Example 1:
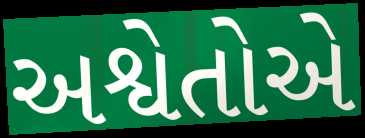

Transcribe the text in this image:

અશ્વેતોએ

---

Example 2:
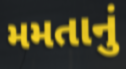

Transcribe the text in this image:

મમતાનું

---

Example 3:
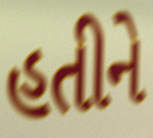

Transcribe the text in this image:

હતીને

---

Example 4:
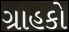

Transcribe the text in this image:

ગ્રાહકો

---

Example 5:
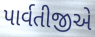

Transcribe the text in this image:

પાર્વતીજીએ